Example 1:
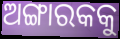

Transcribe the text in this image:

ଅଙ୍ଗାରକକୁ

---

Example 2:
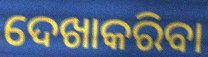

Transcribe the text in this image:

ଦେଖାକରିବା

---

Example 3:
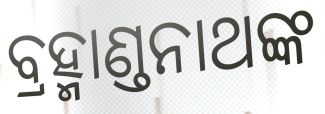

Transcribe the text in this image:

ବ୍ରହ୍ମାଣ୍ଡନାଥଙ୍କ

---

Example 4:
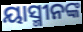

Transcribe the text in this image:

ୟାସ୍ମୀନଙ୍କ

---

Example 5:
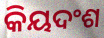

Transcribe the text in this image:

କିୟଦଂଶ